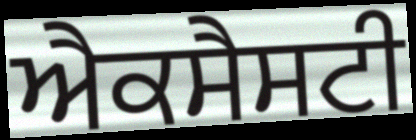
ਐਕਸੈਸਟੀ